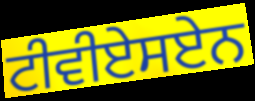
ਟੀਵੀਏਸਏਨ